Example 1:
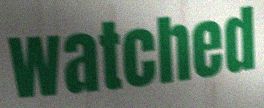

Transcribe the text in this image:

watched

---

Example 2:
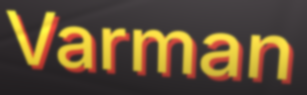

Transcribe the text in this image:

Varman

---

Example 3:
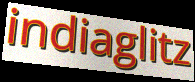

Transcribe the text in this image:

indiaglitz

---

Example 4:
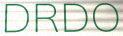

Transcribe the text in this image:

DRDO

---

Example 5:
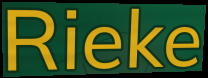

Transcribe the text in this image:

Rieke